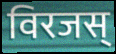
विरजस्